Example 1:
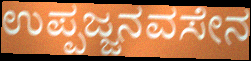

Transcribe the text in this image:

ಉಪ್ಪಜ್ಜನವಸೇನ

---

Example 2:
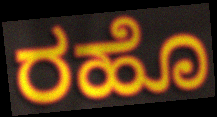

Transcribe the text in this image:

ರಹೊ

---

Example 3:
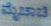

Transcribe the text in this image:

ಮೈಚಾಚಿ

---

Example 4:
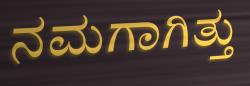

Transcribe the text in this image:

ನಮಗಾಗಿತ್ತು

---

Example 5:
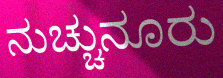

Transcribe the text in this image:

ನುಚ್ಚುನೂರು